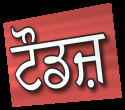
ਟੌਡਜ਼